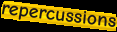
repercussions